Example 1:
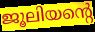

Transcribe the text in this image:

ജൂലിയന്റെ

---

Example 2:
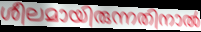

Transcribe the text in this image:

ശീലമായിരുന്നതിനാൽ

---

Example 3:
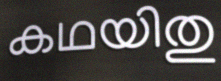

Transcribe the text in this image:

കഥയിതു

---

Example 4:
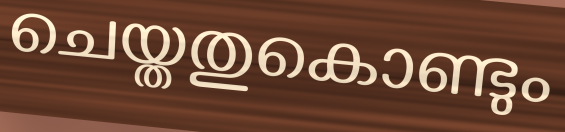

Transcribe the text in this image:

ചെയ്തതുകൊണ്ടും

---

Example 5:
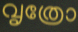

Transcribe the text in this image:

വൃത്രോ